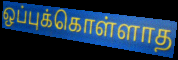
ஒப்புக்கொள்ளாத